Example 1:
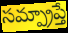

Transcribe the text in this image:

సమ్ప్రాప్తే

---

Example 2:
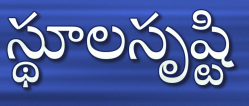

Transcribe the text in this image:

స్థూలసృష్టి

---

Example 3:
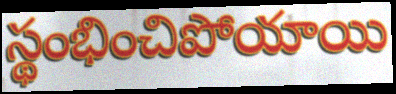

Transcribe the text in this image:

స్థంభించిపోయాయి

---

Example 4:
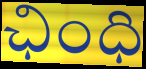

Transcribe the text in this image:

ఛింధి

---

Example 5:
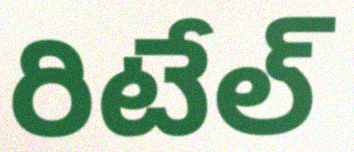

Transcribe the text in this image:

రిటేల్